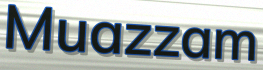
Muazzam